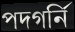
পদগর্নি